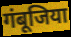
गंबूजिया